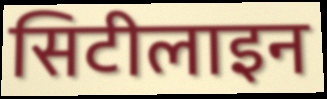
सिटीलाइन